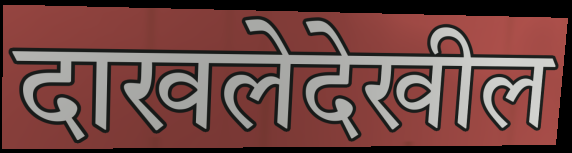
दाखलेदेखील